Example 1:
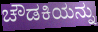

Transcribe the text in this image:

ಚೌಡಕಿಯನ್ನು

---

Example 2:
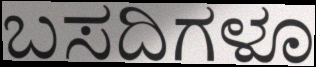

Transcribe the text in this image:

ಬಸದಿಗಳೂ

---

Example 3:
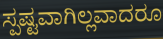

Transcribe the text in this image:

ಸ್ಪಷ್ಟವಾಗಿಲ್ಲವಾದರೂ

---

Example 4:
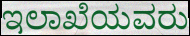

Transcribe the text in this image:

ಇಲಾಖೆಯವರು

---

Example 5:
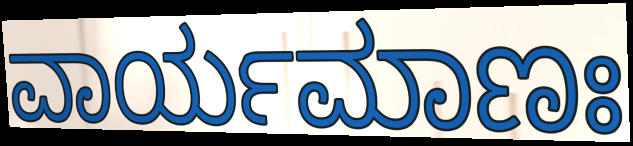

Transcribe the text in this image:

ವಾರ್ಯಮಾಣಃ